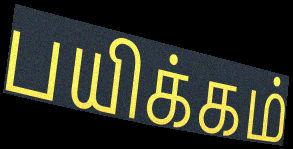
பயிக்கம்